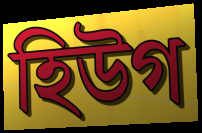
হিউগ